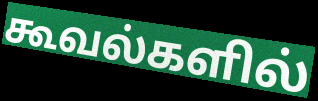
கூவல்களில்